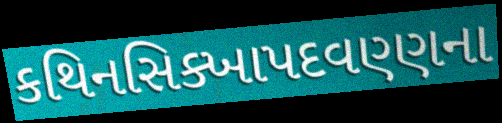
કથિનસિક્ખાપદવણ્ણના